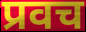
प्रवच